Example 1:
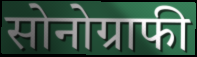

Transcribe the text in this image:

सोनोग्राफी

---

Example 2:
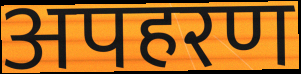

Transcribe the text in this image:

अपहरण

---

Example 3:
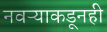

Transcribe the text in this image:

नवऱ्याकडूनही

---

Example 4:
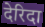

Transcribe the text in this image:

देरिदा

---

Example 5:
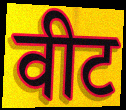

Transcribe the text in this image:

वीट